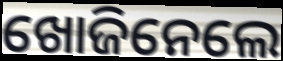
ଖୋଜିନେଲେ